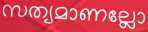
സത്യമാണല്ലോ